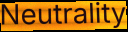
Neutrality